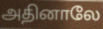
அதினாலே